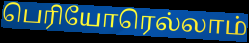
பெரியோரெல்லாம்